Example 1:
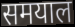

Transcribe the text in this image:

समयाल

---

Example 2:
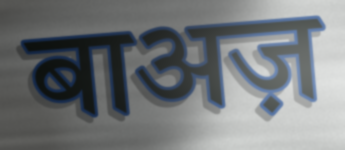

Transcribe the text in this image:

बाअज़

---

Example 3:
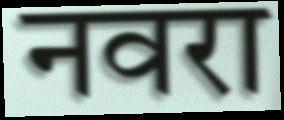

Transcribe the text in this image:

नवरा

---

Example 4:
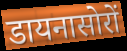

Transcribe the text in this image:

डायनासोरों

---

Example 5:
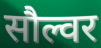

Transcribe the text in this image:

सौल्वर